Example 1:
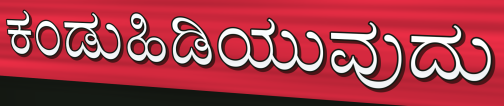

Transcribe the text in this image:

ಕಂಡುಹಿಡಿಯುವುದು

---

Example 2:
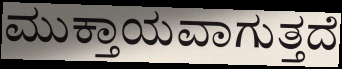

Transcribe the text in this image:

ಮುಕ್ತಾಯವಾಗುತ್ತದೆ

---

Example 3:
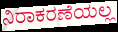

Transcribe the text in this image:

ನಿರಾಕರಣೆಯಲ್ಲ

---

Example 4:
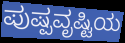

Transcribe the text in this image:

ಪುಷ್ಪವೃಷ್ಟಿಯ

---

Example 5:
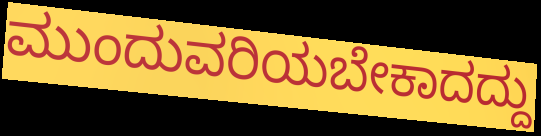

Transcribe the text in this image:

ಮುಂದುವರಿಯಬೇಕಾದದ್ದು